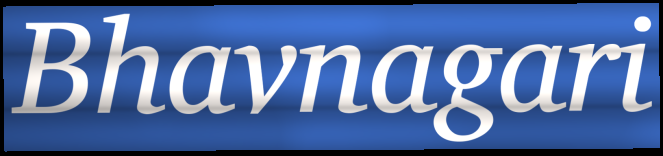
Bhavnagari